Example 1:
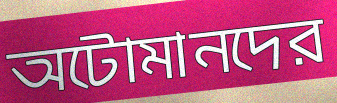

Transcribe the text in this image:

অটোমানদের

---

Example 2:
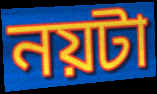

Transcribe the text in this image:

নয়টা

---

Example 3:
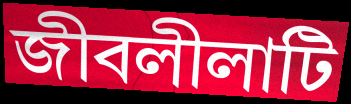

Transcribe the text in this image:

জীবলীলাটি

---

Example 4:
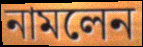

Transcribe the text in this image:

নামলেন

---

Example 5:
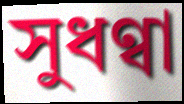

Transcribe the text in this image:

সুধণ্বা